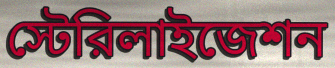
স্টেরিলাইজেশন